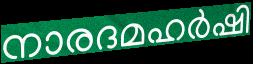
നാരദമഹർഷി